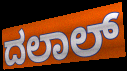
ದಲಾಲ್